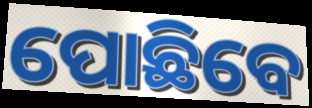
ପୋଛିବେ